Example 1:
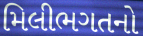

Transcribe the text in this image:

મિલીભગતનો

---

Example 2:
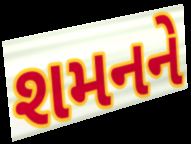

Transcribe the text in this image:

શમનને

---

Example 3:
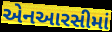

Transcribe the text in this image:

એનઆરસીમાં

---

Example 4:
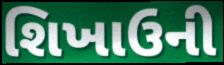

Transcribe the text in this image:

શિખાઉની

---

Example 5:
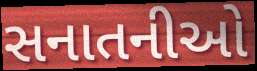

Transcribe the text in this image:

સનાતનીઓ